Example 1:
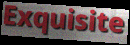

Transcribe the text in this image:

Exquisite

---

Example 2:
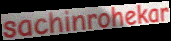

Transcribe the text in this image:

sachinrohekar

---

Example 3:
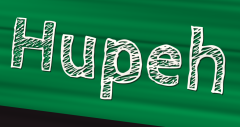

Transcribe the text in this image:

Hupeh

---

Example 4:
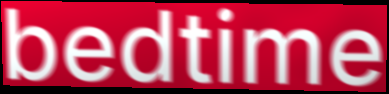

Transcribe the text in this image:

bedtime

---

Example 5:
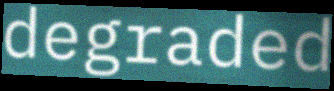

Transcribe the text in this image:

degraded